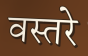
वस्तरे